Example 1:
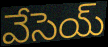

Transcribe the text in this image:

వేసెయ్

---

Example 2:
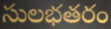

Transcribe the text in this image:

సులభతరం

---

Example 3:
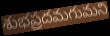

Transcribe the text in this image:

శుభప్రదమగుమని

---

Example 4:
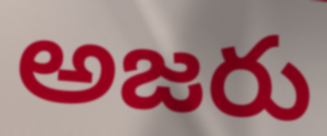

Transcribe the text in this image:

అజరు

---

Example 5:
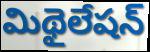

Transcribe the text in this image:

మిథైలేషన్